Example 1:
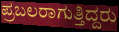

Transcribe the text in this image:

ಪ್ರಬಲರಾಗುತ್ತಿದ್ದರು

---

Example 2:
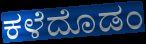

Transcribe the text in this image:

ಕಳೆದೊಡಂ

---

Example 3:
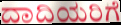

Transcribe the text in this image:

ದಾದಿಯರಿಗೆ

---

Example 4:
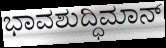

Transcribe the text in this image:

ಭಾವಶುದ್ಧಿಮಾನ್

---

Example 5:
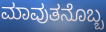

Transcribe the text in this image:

ಮಾವುತನೊಬ್ಬ